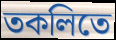
তকলিতে